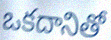
ఒకదానితో